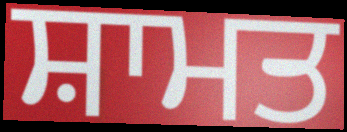
ਸ਼ਾਮਤ